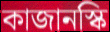
কাজানস্কি